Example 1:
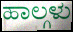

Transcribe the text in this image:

ಹಾಲ್ಗಳು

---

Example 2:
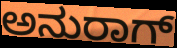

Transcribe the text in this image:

ಅನುರಾಗ್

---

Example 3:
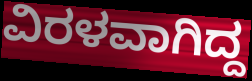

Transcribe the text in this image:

ವಿರಳವಾಗಿದ್ದ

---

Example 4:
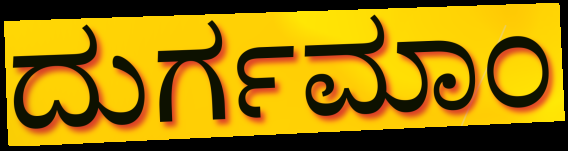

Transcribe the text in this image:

ದುರ್ಗಮಾಂ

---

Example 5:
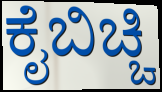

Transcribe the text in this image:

ಕೈಬಿಚ್ಚಿ